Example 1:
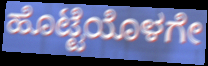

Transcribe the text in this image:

ಹೊಟ್ಟೆಯೊಳಗೇ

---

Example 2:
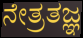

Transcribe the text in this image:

ನೇತ್ರತಜ್ಞ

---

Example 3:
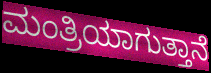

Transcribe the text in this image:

ಮಂತ್ರಿಯಾಗುತ್ತಾನೆ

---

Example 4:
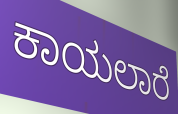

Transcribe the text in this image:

ಕಾಯಲಾರೆ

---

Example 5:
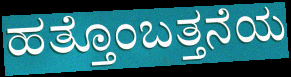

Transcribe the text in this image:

ಹತ್ತೊಂಬತ್ತನೆಯ